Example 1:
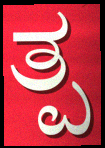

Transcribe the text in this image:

ತ್ಪ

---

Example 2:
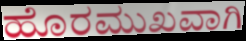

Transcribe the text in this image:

ಹೊರಮುಖವಾಗಿ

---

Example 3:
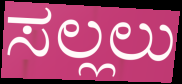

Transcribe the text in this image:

ಸಲ್ಲಲು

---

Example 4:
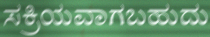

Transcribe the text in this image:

ಸಕ್ರಿಯವಾಗಬಹುದು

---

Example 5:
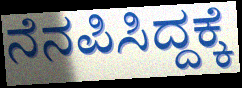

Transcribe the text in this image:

ನೆನಪಿಸಿದ್ದಕ್ಕೆ